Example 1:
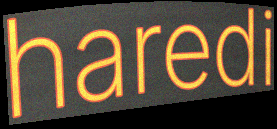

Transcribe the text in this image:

haredi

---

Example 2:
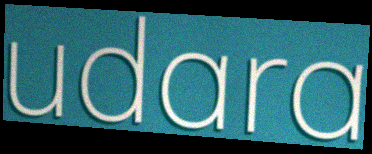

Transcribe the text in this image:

udara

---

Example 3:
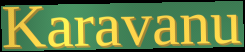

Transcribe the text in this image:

Karavanu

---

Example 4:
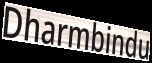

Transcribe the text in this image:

Dharmbindu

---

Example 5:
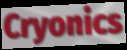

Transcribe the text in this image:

Cryonics